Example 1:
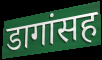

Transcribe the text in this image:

डागांसह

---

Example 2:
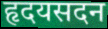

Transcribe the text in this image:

हृदयसदन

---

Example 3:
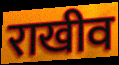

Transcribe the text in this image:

राखीव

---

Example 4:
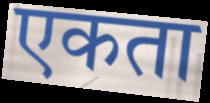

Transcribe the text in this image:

एकता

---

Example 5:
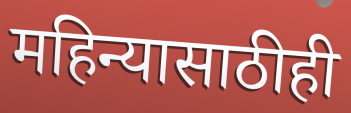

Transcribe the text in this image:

महिन्यासाठीही